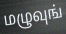
மழுவுங்